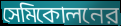
সেমিকোলনের